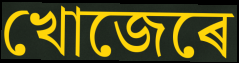
খোজেৰে